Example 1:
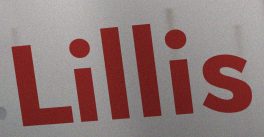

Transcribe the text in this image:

Lillis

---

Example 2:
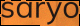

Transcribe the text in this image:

saryo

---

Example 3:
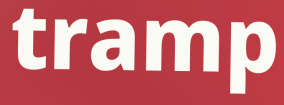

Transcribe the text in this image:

tramp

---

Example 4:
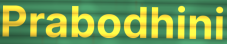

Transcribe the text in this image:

Prabodhini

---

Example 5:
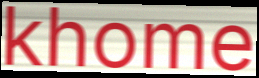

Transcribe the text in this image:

khome